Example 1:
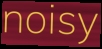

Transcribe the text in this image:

noisy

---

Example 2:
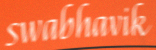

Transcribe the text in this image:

swabhavik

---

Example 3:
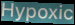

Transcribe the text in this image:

Hypoxic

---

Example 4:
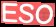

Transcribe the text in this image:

ESO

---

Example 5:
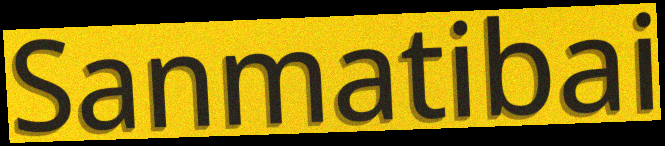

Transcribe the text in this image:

Sanmatibai